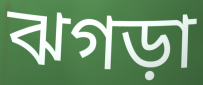
ঝগড়া